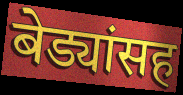
बेड्यांसह